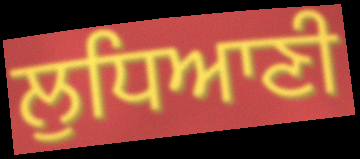
ਲੁਧਿਆਣੀ